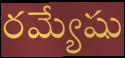
రమ్యేషు